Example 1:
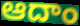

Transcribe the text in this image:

ఆదాం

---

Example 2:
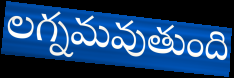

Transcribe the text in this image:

లగ్నమవుతుంది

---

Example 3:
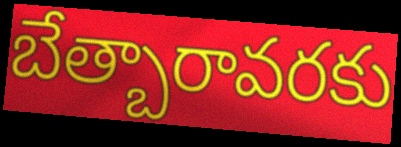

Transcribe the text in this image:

బేత్బారావరకు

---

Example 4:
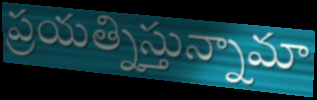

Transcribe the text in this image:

ప్రయత్నిస్తున్నామా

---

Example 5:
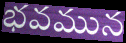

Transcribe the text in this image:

భవమున